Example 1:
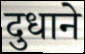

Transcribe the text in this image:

दुधाने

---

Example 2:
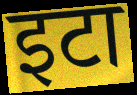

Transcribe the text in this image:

इटा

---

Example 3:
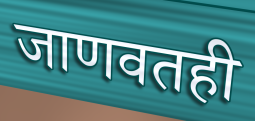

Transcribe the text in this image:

जाणवतही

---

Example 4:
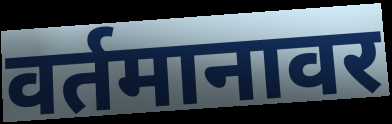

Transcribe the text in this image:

वर्तमानावर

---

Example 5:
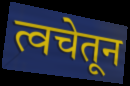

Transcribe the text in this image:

त्वचेतून